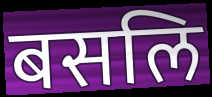
बसलि